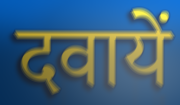
दवायें